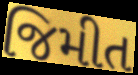
જિમીત